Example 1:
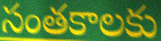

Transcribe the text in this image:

సంతకాలకు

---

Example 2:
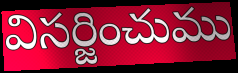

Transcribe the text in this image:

విసర్జించుము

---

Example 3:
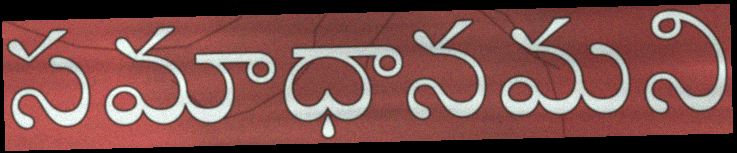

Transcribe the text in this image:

సమాధానమని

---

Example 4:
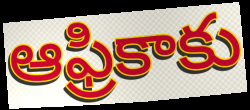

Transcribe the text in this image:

ఆఫ్రికాకు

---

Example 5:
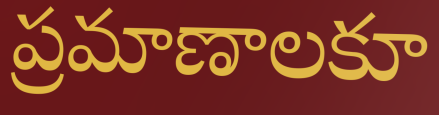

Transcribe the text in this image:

ప్రమాణాలకూ